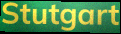
Stutgart